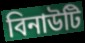
বিনাউটি